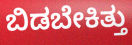
ಬಿಡಬೇಕಿತ್ತು